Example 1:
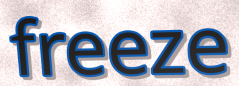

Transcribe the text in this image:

freeze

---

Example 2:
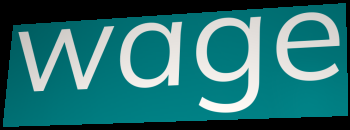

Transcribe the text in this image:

wage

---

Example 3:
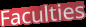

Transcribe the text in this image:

Faculties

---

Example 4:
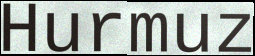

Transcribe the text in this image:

Hurmuz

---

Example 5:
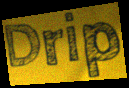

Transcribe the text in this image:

Drip